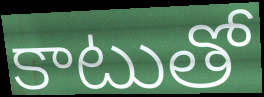
కాటుతో